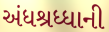
અંધશ્રધ્ધાની